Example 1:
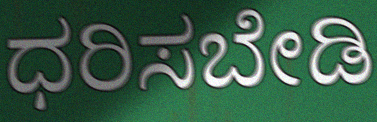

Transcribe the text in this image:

ಧರಿಸಬೇಡಿ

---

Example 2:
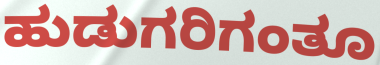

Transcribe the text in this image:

ಹುಡುಗರಿಗಂತೂ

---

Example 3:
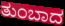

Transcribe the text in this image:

ತುಂಬಾದ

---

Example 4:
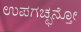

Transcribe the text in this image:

ಉಪಗಚ್ಛನ್ತೋ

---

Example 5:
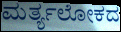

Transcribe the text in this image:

ಮರ್ತ್ಯಲೋಕದ